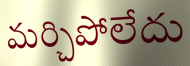
మర్చిపోలేదు